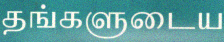
தங்களுடைய